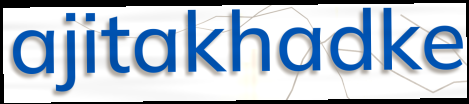
ajitakhadke